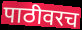
पाठीवरच